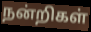
நன்றிகள்